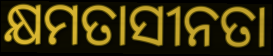
କ୍ଷମତାସୀନତା